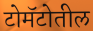
टोमॅटोतील